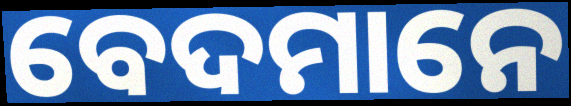
ବେଦମାନେ